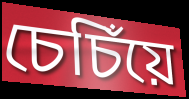
চেচিঁয়ে